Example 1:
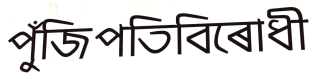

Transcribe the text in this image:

পুঁজিপতিবিৰোধী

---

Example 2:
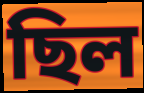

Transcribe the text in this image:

ছিল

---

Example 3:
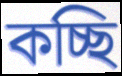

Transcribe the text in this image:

কচ্ছি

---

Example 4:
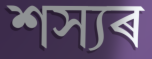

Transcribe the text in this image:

শস্যৰ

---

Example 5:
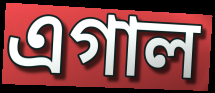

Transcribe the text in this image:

এগাল